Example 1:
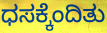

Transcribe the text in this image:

ಧಸಕ್ಕೆಂದಿತು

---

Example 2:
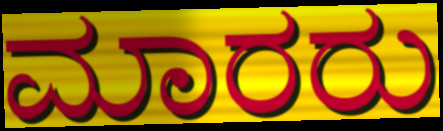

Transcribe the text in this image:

ಮಾರರು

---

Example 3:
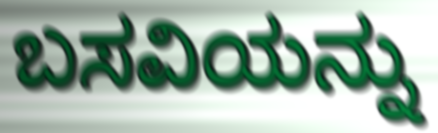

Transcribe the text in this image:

ಬಸವಿಯನ್ನು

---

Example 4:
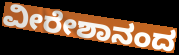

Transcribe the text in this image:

ವೀರೇಶಾನಂದ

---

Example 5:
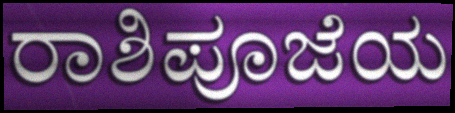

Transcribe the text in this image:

ರಾಶಿಪೂಜೆಯ